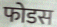
फोडस